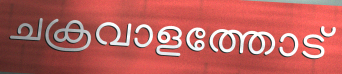
ചക്രവാളത്തോട്